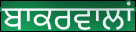
ਬਾਕਰਵਾਲਾਂ